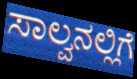
ಸಾಲ್ವನಲ್ಲಿಗೆ